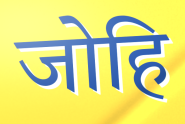
जोहि